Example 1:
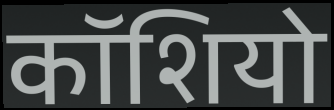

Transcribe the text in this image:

कॉशियो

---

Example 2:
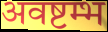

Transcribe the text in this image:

अवष्टम्भ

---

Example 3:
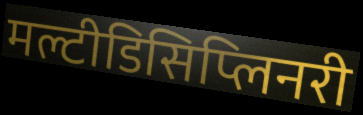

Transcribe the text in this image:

मल्टीडिसिप्लिनरी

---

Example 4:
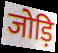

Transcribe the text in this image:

जोड़ि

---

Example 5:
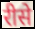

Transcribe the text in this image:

रीसे